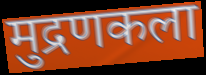
मुद्रणकला